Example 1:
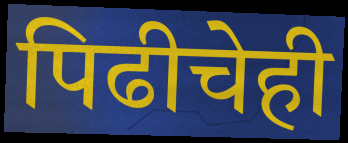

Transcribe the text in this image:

पिढीचेही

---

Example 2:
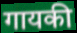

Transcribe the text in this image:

गायकी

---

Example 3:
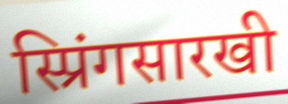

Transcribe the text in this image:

स्प्रिंगसारखी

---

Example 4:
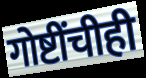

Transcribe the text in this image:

गोष्टींचीही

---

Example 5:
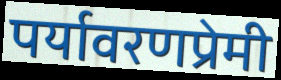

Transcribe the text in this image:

पर्यावरणप्रेमी